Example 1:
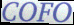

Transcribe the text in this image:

COFO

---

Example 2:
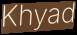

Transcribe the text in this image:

Khyad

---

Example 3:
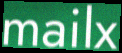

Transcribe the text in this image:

mailx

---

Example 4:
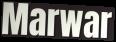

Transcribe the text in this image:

Marwar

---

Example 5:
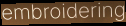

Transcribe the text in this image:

embroidering